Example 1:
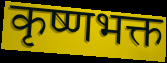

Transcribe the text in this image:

कृष्णभक्त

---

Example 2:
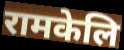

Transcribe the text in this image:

रामकेलि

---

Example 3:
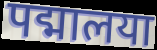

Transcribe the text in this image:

पद्मालया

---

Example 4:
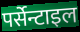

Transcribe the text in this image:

पर्सेन्टाइल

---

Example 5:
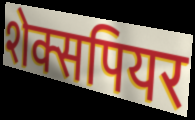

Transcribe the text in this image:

शेक्सपियर